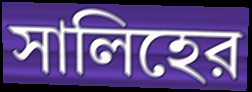
সালিহের